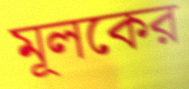
মূলকের